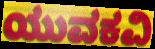
ಯುವಕವಿ